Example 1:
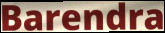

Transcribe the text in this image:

Barendra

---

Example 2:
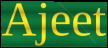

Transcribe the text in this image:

Ajeet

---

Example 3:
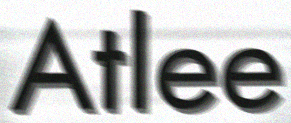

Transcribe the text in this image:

Atlee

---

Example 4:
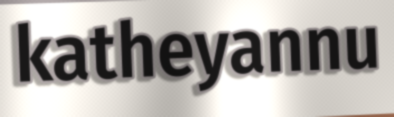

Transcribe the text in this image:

katheyannu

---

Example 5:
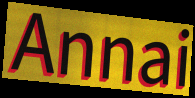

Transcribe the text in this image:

Annai